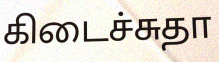
கிடைச்சுதா